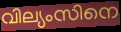
വില്യംസിനെ